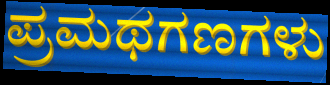
ಪ್ರಮಥಗಣಗಳು